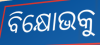
ବିକ୍ଷୋଭକୁ